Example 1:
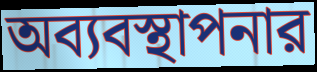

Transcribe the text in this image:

অব্যবস্থাপনার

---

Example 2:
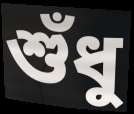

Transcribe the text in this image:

শুঁধু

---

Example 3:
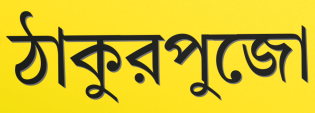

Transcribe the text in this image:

ঠাকুরপুজো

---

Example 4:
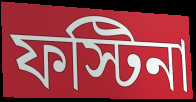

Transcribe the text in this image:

ফস্টিনা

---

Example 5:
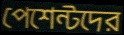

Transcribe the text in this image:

পেশেন্টদের